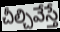
చీల్చివేస్తే